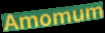
Amomum